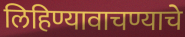
लिहिण्यावाचण्याचे